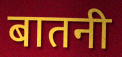
बातनी